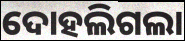
ଦୋହଲିଗଲା